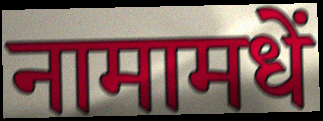
नामामधें